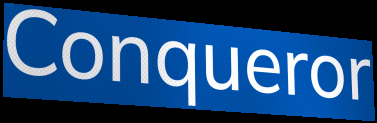
Conqueror